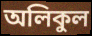
অলিকুল